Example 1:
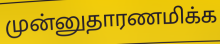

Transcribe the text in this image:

முன்னுதாரணமிக்க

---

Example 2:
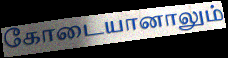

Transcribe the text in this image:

கோடையானாலும்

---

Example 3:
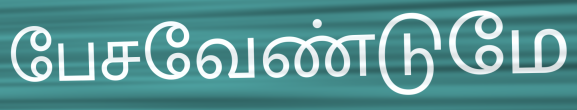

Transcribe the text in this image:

பேசவேண்டுமே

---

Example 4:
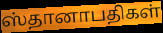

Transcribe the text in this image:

ஸ்தானாபதிகள்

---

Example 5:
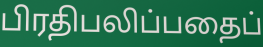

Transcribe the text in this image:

பிரதிபலிப்பதைப்